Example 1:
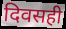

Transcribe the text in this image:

दिवसही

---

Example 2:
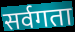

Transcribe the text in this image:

सर्वगता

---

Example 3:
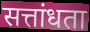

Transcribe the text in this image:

सत्तांधता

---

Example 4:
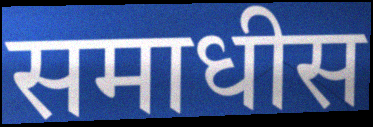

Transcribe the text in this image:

समाधीस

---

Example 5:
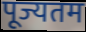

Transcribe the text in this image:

पूज्यतम